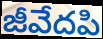
జీవేదపి